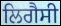
ਲਿਗੈਸੀ